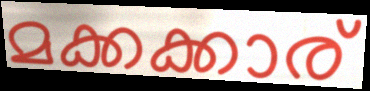
മക്കക്കാര്